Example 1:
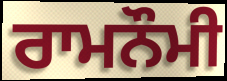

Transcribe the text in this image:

ਰਾਮਨੌਮੀ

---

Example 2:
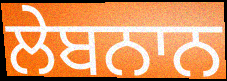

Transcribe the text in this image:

ਲੇਬਨਾਨ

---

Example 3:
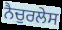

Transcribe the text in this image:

ਨੈਚੁਰਲੇਸ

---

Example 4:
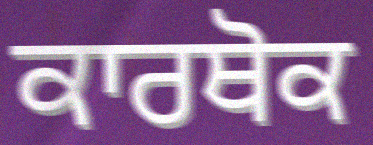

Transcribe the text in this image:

ਕਾਰਥੋਕ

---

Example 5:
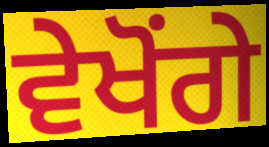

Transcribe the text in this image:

ਵੇਖੋਂਗੇ